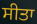
ਸੀਤਾ